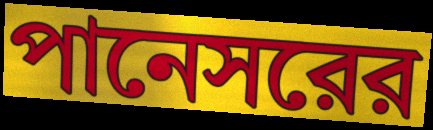
পানেসরের